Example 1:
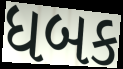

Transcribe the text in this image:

ધબક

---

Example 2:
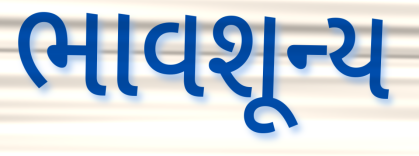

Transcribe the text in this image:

ભાવશૂન્ય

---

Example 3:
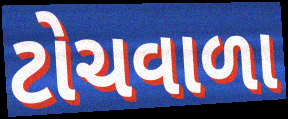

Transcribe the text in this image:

ટોચવાળા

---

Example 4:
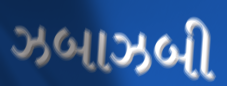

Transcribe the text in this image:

ઝબાઝબી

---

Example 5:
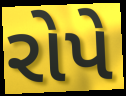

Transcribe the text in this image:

રોપે